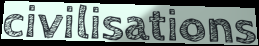
civilisations